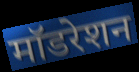
मॉडरेशन